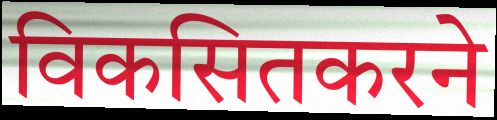
विकसितकरने